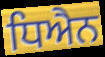
ਧਿਐਨ